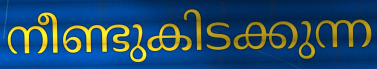
നീണ്ടുകിടക്കുന്ന